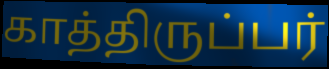
காத்திருப்பர்